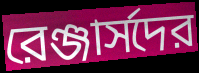
রেঞ্জার্সদের